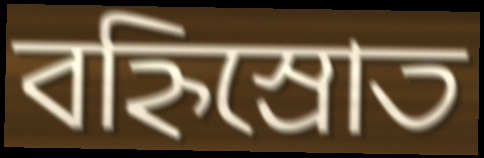
বহ্নিস্রোত